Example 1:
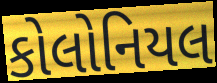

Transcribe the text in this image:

કોલોનિયલ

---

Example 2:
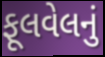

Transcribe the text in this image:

ફૂલવેલનું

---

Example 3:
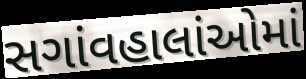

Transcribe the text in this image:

સગાંવહાલાંઓમાં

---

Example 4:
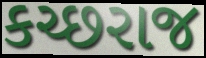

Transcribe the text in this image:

કચ્છરાજ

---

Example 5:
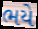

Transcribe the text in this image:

ભયે